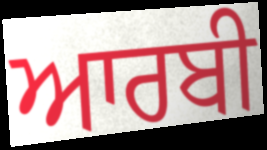
ਆਰਬੀ